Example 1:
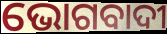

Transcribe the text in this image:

ଭୋଗବାଦୀ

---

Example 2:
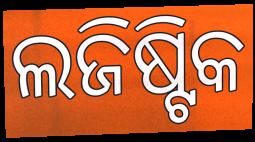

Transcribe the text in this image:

ଲଜିଷ୍ଟିକ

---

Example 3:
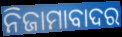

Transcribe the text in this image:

ନିଜାମାବାଦର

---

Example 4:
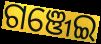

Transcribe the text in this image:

ଗଞ୍ଜେଇ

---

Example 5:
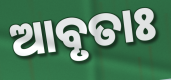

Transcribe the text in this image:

ଆବୃତାଃ